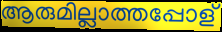
ആരുമില്ലാത്തപ്പോള്